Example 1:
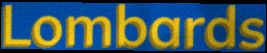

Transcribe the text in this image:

Lombards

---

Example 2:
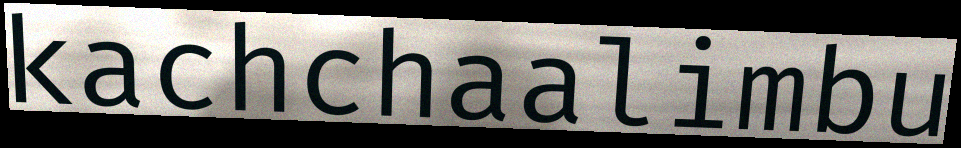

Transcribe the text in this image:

kachchaalimbu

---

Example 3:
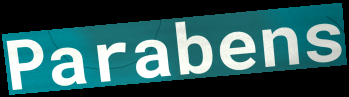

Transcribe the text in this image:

Parabens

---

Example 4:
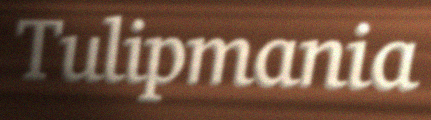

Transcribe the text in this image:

Tulipmania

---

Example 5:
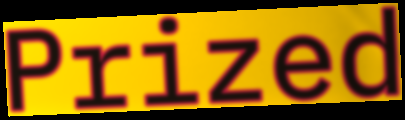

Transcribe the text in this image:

Prized